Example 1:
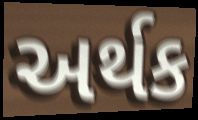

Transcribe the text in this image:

અર્થક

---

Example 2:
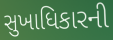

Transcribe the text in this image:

સુખાધિકારની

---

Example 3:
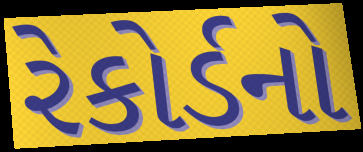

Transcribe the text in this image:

રેકોર્ડનો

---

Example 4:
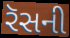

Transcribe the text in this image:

રૅસની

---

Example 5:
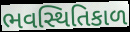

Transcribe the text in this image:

ભવસ્થિતિકાળ